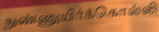
நுண்ணுயிர்க்கொல்லி